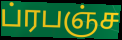
ப்ரபஞ்ச